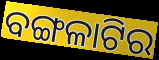
ବଙ୍ଗଳାଟିର